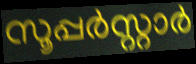
സൂപ്പർസ്റ്റാർ